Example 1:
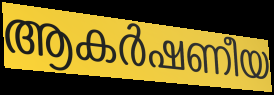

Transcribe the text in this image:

ആകർഷണീയ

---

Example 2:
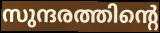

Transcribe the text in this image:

സുന്ദരത്തിന്റെ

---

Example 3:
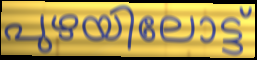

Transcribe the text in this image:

പുഴയിലോട്ട്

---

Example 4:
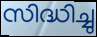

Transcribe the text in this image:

സിദ്ധിച്ചു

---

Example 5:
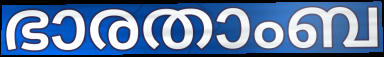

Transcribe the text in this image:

ഭാരതാംബ